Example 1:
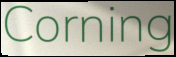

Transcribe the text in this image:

Corning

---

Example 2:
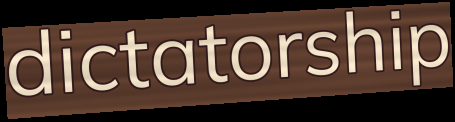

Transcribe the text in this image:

dictatorship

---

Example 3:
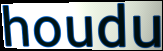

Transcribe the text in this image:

houdu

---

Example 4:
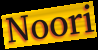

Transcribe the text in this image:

Noori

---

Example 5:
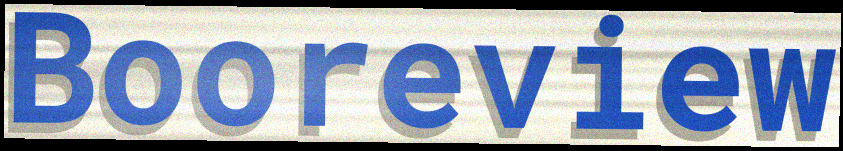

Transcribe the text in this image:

Booreview